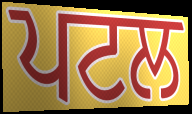
ਪਟਲ